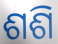
ଶଶି